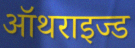
ऑथराइज्ड